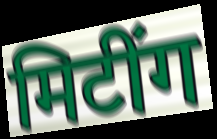
मिटींग